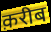
क़रीब